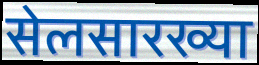
सेलसारख्या